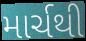
માર્ચથી